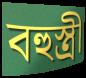
বহুস্ত্ৰী